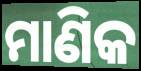
ମାଣିକ